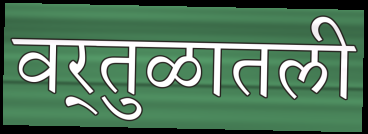
वर्तुळातली